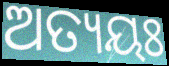
ଅତ୍ୟୟଃ